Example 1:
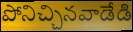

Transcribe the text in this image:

పోనిచ్చినవాడేడి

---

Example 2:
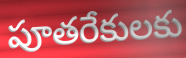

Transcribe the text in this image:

పూతరేకులకు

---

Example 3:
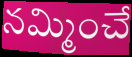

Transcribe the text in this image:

నమ్మించే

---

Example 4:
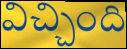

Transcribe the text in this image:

విచ్చింది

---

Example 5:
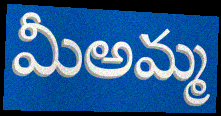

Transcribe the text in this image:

మీఅమ్మ